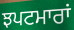
ਝਪਟਮਾਰਾਂ